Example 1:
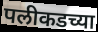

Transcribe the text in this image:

पलीकडच्या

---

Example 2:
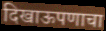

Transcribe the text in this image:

दिखाऊपणाचा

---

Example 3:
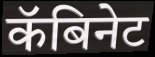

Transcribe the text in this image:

कॅबिनेट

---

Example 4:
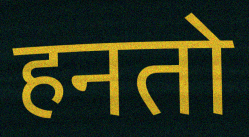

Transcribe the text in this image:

हनतो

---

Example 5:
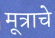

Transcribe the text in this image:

मूत्राचे